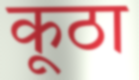
कूठा